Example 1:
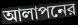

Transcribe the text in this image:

আলাপনের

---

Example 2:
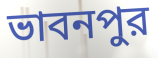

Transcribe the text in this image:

ভাবনপুর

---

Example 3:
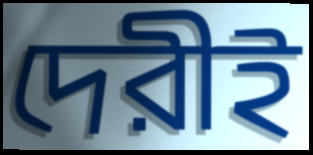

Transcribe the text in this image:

দেরীই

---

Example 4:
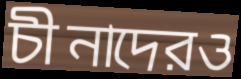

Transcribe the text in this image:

চীনাদেরও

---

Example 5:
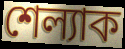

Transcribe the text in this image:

শেল্যাক